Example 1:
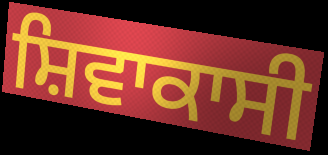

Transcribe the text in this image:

ਸ਼ਿਵਾਕਾਸੀ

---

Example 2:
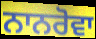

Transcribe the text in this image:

ਨਾਨਰੋਵਾ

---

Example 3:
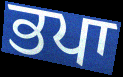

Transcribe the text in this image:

ਭਪਾ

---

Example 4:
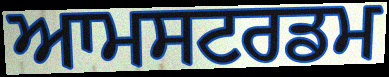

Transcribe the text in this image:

ਆਮਸਟਰਡਮ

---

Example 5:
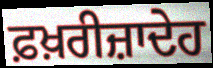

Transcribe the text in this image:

ਫ਼ਖ਼ਰੀਜ਼ਾਦੇਹ